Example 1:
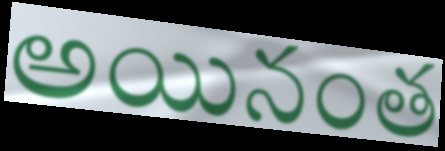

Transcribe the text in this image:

అయినంత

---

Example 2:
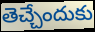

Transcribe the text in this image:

తెచ్చేందుకు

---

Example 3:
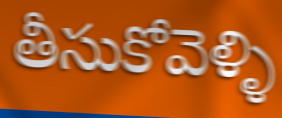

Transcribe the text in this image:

తీసుకోవెళ్ళి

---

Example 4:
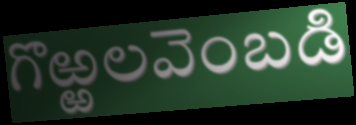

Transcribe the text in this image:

గొఱ్ఱలవెంబడి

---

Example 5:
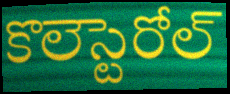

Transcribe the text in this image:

కొలెస్టెరోల్